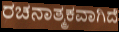
ರಚನಾತ್ಮಕವಾಗಿದೆ